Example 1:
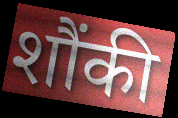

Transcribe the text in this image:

शौंकी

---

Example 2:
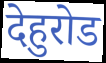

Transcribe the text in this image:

देहुरोड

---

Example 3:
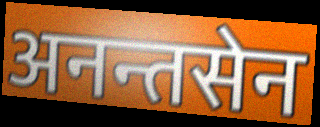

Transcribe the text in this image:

अनन्तसेन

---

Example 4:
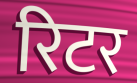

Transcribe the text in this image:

रिटर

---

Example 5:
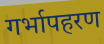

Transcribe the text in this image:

गर्भापहरण